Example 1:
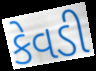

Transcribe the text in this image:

કેવડી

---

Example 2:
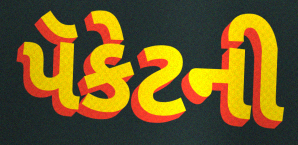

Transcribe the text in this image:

પૅકેટની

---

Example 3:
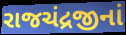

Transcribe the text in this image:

રાજચંદ્રજીનાં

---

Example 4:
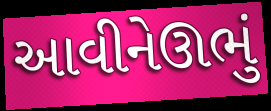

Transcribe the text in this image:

આવીનેઊભું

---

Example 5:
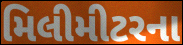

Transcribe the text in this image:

મિલીમીટરના